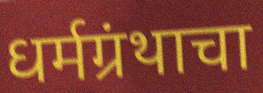
धर्मग्रंथाचा